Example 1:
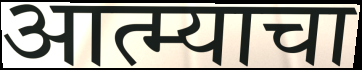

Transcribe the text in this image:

आत्म्याचा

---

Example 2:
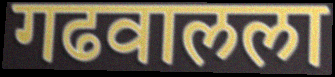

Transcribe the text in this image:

गढवालला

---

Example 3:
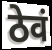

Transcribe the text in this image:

ठेवं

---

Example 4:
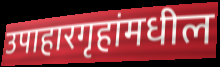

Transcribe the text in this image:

उपाहारगृहांमधील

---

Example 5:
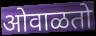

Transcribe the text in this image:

ओवाळतो